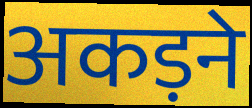
अकड़ने